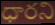
ధారని